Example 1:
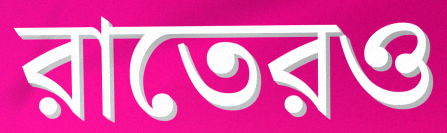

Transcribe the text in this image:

রাতেরও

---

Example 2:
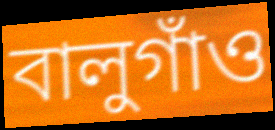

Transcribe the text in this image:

বালুগাঁও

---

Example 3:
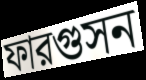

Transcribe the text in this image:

ফারগুসন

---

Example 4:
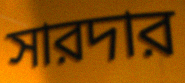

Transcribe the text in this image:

সারদার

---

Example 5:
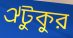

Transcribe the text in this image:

ঐটুকুর